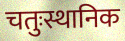
चतुःस्थानिक